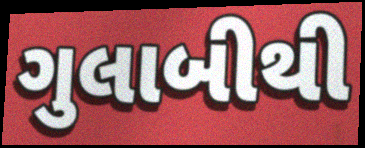
ગુલાબીથી